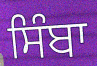
ਸਿੰਬਾ